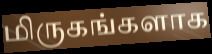
மிருகங்களாக